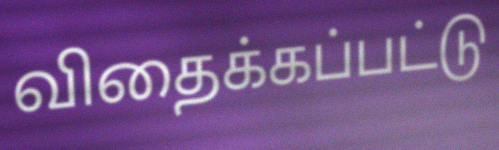
விதைக்கப்பட்டு